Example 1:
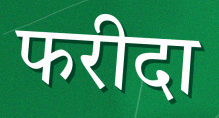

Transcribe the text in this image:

फरीदा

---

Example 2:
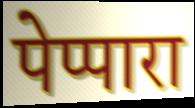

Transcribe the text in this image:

पेप्पारा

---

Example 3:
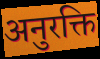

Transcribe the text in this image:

अनुरक्ति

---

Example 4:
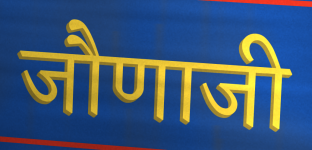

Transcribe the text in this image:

जौणाजी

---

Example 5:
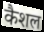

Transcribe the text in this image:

कैशल